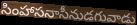
సింహాసనాసీనుడగువాడు